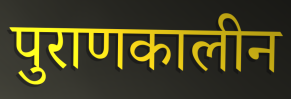
पुराणकालीन